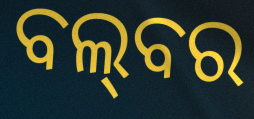
ବଲ୍‌ବର